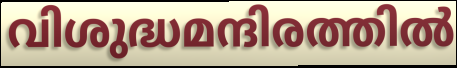
വിശുദ്ധമന്ദിരത്തിൽ